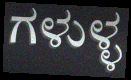
ಗಳುಳ್ಳ